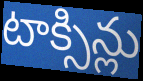
టాక్సిన్లు